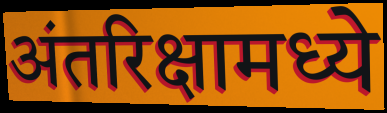
अंतरिक्षामध्ये